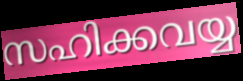
സഹിക്കവയ്യ